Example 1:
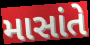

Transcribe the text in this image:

માસાંતે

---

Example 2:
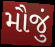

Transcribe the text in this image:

મૌજું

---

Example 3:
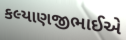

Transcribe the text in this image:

કલ્યાણજીભાઈએ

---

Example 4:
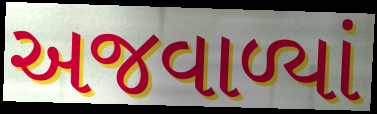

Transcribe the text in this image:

અજવાળ્યાં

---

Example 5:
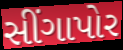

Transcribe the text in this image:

સીંગાપોર